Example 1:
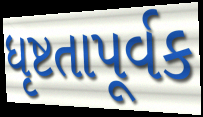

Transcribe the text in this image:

ધૃષ્ટતાપૂર્વક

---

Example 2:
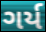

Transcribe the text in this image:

ગર્ય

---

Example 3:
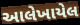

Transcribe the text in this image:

આલેખાયેલ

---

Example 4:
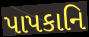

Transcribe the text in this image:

પાપકાનિ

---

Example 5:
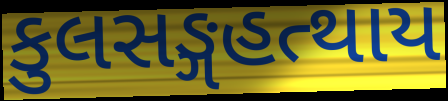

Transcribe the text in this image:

કુલસઙ્ગહત્થાય